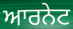
ਆਰਨੇਟ